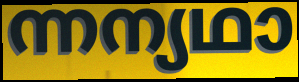
ന്നന്യഥാ